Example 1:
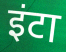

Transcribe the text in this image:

इंटा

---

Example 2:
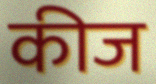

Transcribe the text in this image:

कीज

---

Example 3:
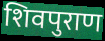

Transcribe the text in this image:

शिवपुराण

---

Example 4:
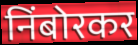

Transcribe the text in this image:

निंबोरकर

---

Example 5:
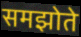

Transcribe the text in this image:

समझोते